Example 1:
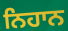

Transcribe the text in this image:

ਨਿਹਾਨ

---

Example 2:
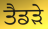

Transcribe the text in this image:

ਤੈਡੜੇ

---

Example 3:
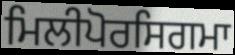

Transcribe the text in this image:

ਮਿਲੀਪੋਰਸਿਗਮਾ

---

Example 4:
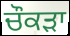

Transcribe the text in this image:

ਚੌਕੜਾ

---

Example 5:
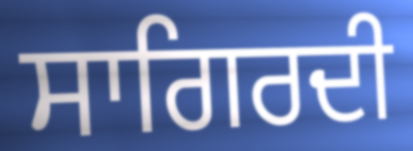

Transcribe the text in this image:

ਸਾਗਿਰਦੀ